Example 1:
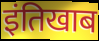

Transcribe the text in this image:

इंतिखाब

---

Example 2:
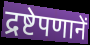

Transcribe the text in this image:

द्रष्टेपणानें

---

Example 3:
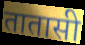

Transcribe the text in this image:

तातासी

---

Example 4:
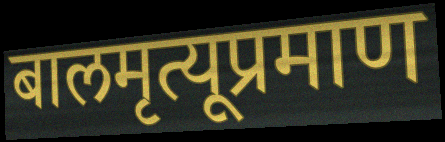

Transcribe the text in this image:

बालमृत्यूप्रमाण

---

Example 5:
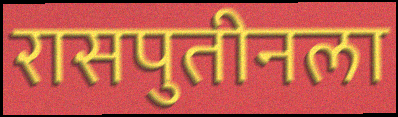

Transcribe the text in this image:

रासपुतीनला